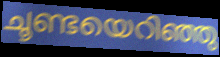
ചൂണ്ടയെറിഞ്ഞു